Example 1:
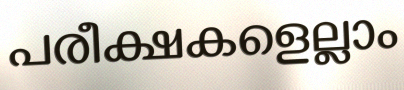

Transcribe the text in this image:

പരീക്ഷകളെല്ലാം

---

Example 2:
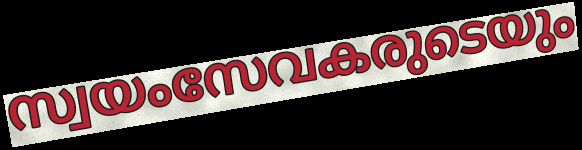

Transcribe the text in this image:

സ്വയംസേവകരുടെയും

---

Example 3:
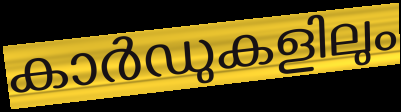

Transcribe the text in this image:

കാർഡുകളിലും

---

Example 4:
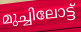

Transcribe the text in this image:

മുച്ചിലോട്ട്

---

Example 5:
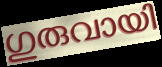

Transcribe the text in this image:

ഗുരുവായി